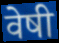
वेषी